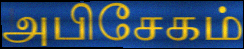
அபிசேகம்